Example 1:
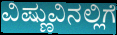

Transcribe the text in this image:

ವಿಷ್ಣುವಿನಲ್ಲಿಗೆ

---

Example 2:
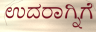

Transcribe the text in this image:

ಉದರಾಗ್ನಿಗೆ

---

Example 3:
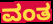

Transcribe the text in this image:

ವಂತ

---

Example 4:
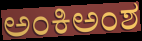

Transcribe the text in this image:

ಅಂಕಿಅಂಶ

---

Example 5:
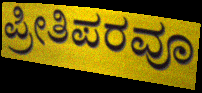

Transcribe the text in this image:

ಪ್ರೀತಿಪರವೂ